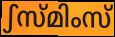
ഽസ്മിംസ്